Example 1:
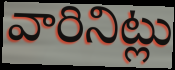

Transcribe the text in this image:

వారినిట్లు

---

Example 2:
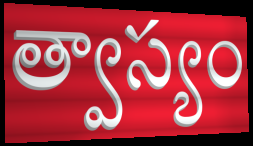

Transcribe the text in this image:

త్వాస్యం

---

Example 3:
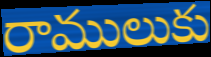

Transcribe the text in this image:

రాములుకు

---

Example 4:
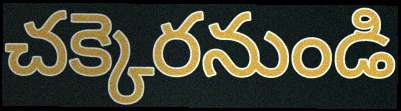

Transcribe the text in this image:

చక్కెరనుండి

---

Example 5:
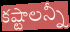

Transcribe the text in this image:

కష్టాలన్నీ